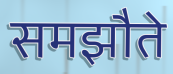
समझौते